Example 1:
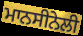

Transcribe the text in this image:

ਮਾਨਸੀਨੇਲੀ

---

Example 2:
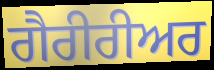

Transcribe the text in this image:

ਗੈਰੀਰੀਅਰ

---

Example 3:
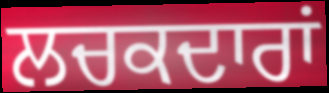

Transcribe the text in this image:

ਲਚਕਦਾਰਾਂ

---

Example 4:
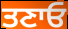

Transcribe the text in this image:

ਤਣਾਓ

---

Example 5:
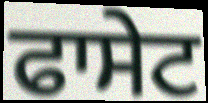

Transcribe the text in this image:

ਫਾਸੇਟ